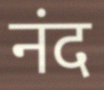
नंद